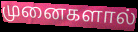
முனைகளால்